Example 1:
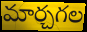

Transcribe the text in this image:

మార్చగల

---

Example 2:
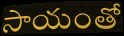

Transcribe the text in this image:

సాయంతో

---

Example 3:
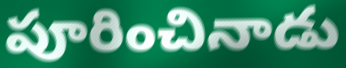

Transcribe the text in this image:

పూరించినాడు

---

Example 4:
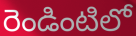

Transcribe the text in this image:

రెండింటిలో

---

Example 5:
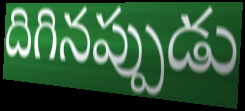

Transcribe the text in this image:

దిగినప్పుడు